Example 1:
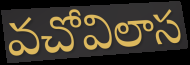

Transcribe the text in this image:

వచోవిలాస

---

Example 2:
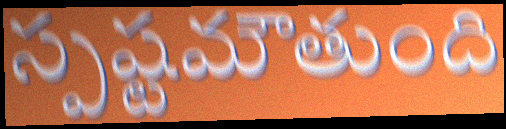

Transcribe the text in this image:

స్పష్టమౌతుంది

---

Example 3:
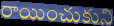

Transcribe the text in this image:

రాయించుకుని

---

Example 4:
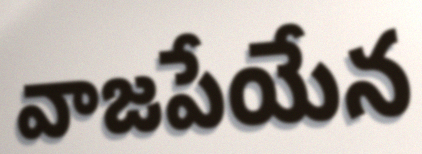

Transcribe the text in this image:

వాజపేయేన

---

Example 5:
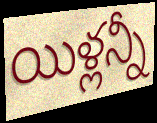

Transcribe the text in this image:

యిళ్లన్నీ